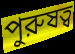
পুরুষত্ব